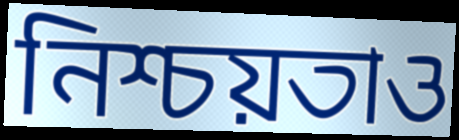
নিশ্চয়তাও